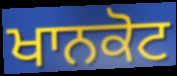
ਖਾਨਕੋਟ